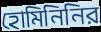
হোমিনিনির